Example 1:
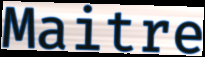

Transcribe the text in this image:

Maitre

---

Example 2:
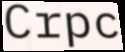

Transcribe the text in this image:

Crpc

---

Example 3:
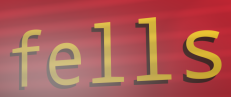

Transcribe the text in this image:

fells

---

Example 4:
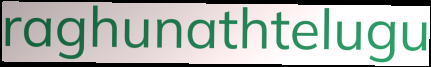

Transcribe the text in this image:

raghunathtelugu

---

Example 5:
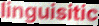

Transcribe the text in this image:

linguisitic